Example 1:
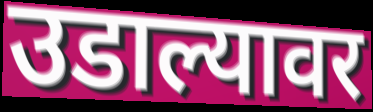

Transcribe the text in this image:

उडाल्यावर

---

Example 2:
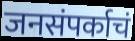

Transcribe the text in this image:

जनसंपर्काचं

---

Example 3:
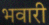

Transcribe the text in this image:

भवारी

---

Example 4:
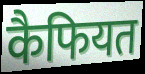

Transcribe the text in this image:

कैफियत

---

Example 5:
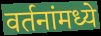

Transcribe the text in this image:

वर्तनांमध्ये